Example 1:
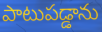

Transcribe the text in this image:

పాటుపడ్డాను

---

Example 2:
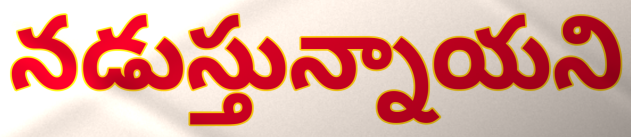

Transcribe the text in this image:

నడుస్తున్నాయని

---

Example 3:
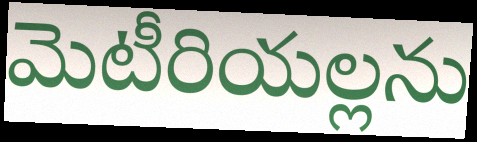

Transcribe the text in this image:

మెటీరియల్లను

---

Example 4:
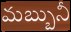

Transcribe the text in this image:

మబ్బునీ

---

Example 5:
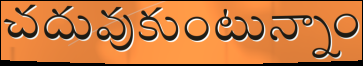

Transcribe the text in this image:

చదువుకుంటున్నాం